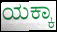
ಯಕ್ಕಾ